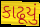
કાઢૂયું